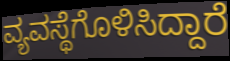
ವ್ಯವಸ್ಥೆಗೊಳಿಸಿದ್ದಾರೆ